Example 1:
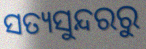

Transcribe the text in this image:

ସତ୍ୟସୁନ୍ଦରରୁ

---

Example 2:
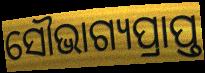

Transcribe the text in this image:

ସୌଭାଗ୍ୟପ୍ରାପ୍ତ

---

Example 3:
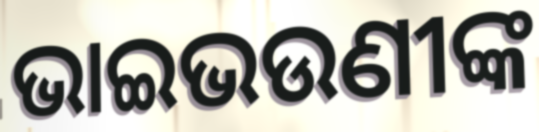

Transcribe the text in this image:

ଭାଇଭଉଣୀଙ୍କ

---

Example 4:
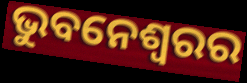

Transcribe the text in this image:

ଭୁବନେଶ୍ୱରର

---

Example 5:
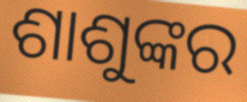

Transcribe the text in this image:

ଶାଶୁଙ୍କର